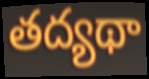
తద్యథా